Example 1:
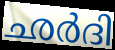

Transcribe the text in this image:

ഛർദി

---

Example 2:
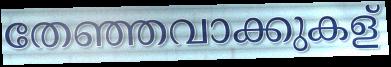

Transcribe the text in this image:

തേഞ്ഞവാക്കുകള്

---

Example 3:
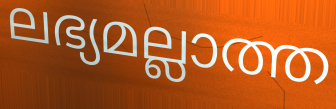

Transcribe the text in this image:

ലഭ്യമല്ലാത്ത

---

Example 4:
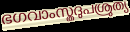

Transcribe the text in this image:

ഭഗവാംസ്തദുപശ്രുത്യ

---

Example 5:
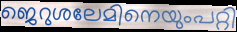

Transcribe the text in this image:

ജെറുശലേമിനെയുംപറ്റി